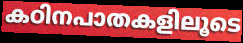
കഠിനപാതകളിലൂടെ